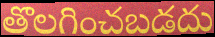
తొలగించబడదు